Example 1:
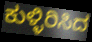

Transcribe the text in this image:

ಕುಳ್ಳಿರಿಸಿದ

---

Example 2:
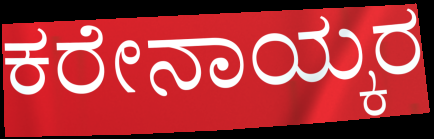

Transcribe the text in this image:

ಕರೇನಾಯ್ಕರ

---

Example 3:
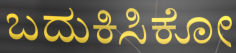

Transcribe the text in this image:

ಬದುಕಿಸಿಕೋ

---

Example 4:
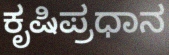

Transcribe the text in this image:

ಕೃಷಿಪ್ರಧಾನ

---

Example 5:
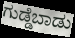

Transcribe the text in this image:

ಗುಡ್ಡೆಬಾಡು